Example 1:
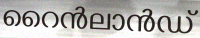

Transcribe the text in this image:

റൈൻലാൻഡ്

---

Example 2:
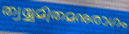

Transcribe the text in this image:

ത്വയ്യമിതമനുരാഗം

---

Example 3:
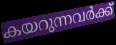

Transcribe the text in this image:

കയറുന്നവർക്ക്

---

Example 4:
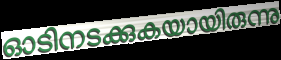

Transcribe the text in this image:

ഓടിനടക്കുകയായിരുന്നു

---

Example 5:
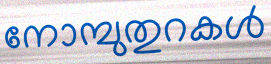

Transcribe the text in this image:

നോമ്പുതുറകൾ